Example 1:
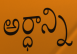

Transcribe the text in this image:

అర్ధాన్ని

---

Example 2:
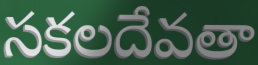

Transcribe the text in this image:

సకలదేవతా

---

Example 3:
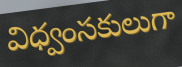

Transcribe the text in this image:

విధ్వంసకులుగా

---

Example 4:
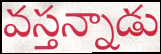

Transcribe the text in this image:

వస్తన్నాడు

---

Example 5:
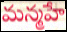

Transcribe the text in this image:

మన్మహే